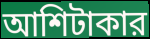
আশিটাকার